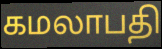
கமலாபதி